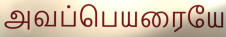
அவப்பெயரையே